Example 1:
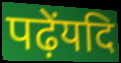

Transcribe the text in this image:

पढ़ेंयदि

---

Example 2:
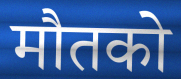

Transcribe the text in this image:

मौतको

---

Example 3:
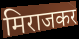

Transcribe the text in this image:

मिराजकर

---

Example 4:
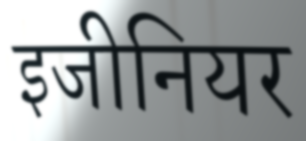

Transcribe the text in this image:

इजीनियर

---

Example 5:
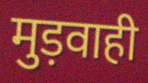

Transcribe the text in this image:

मुड़वाही